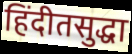
हिंदीतसुद्धा